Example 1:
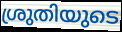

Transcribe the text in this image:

ശ്രുതിയുടെ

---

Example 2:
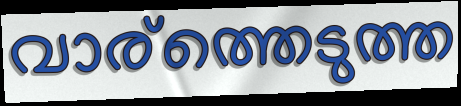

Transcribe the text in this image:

വാര്ത്തെടുത്ത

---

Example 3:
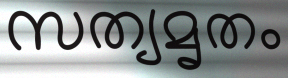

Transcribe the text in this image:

സത്യമൃതം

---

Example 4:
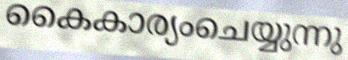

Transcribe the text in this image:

കൈകാര്യംചെയ്യുന്നു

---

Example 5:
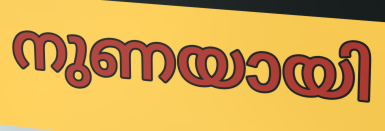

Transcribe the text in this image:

നുണയായി